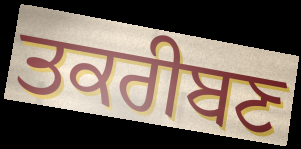
ਤਕਰੀਬਣ